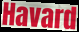
Havard